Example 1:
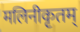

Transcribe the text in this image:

मलिनीकृतम्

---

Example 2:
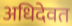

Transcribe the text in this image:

अधिदेवत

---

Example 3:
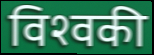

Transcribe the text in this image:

विश्वकी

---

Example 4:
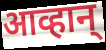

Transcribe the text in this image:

आव्हान्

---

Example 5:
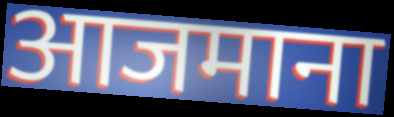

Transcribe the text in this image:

आजमाना